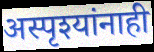
अस्पृश्यांनाही